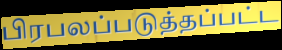
பிரபலப்படுத்தப்பட்ட